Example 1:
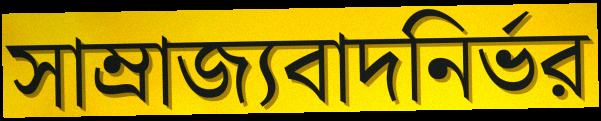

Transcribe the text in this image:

সাম্রাজ্যবাদনির্ভর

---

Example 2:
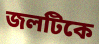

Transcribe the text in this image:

জলটিকে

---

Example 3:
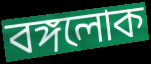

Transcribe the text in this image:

বঙ্গলোক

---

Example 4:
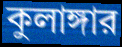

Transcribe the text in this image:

কুলাঙ্গার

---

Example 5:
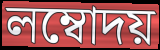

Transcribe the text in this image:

লম্বোদয়